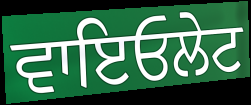
ਵਾਇਓਲੇਟ